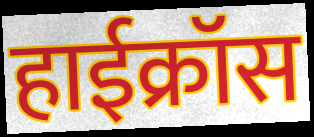
हाईक्रॉस